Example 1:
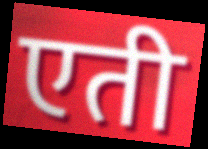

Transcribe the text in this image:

एती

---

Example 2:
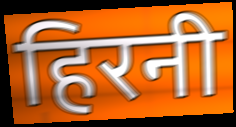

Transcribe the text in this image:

हिरनी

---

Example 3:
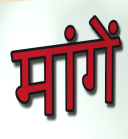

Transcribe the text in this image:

मांगें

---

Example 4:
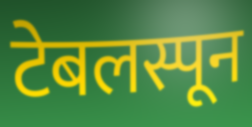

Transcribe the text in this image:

टेबलस्पून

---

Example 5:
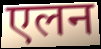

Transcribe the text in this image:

एलन